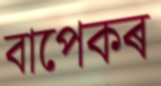
বাপেকৰ